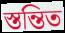
স্তন্তিত